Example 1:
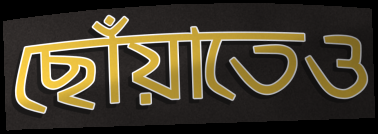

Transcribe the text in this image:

ছোঁয়াতেও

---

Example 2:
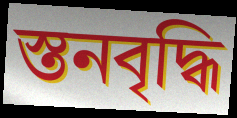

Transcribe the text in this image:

স্তনবৃদ্ধি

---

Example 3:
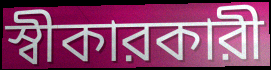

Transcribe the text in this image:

স্বীকারকারী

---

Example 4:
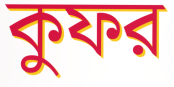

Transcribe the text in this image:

কুফর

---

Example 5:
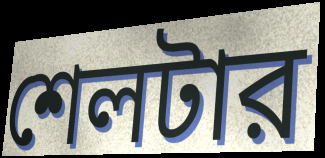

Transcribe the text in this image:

শেলটার